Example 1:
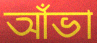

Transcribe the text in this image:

আঁভা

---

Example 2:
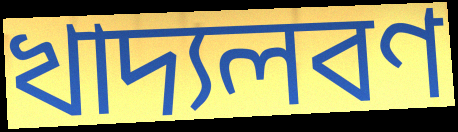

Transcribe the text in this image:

খাদ্যলবণ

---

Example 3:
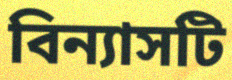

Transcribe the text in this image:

বিন্যাসটি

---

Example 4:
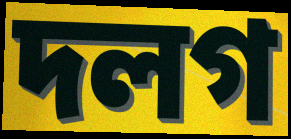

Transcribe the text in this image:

দলগ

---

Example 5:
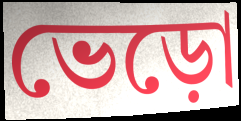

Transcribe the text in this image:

ভেড়ো